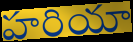
హరియా